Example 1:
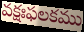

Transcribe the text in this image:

వక్షఃఫలకము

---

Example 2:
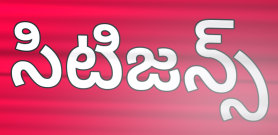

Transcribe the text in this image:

సిటిజన్స్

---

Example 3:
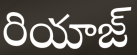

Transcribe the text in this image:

రియాజ్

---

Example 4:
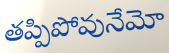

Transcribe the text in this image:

తప్పిపోవునేమో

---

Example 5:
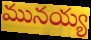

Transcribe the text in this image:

మునయ్య